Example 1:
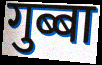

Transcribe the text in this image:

गुब्बा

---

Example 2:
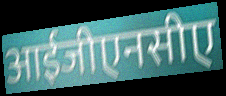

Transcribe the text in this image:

आईजीएनसीए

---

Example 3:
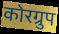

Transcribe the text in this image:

कोरग्रुप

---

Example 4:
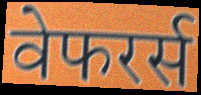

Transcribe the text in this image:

वेफरर्स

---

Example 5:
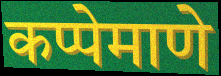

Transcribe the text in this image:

कप्पेमाणे